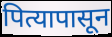
पित्यापासून